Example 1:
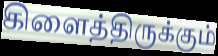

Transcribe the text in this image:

கிளைத்திருக்கும்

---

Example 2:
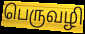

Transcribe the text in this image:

பெருவழி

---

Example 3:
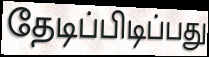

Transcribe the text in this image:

தேடிப்பிடிப்பது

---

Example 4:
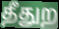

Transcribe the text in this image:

தீதுற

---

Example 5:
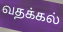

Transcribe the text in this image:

வதக்கல்